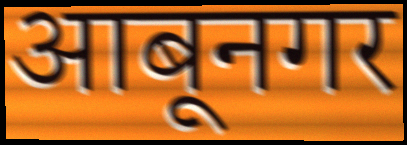
आबूनगर